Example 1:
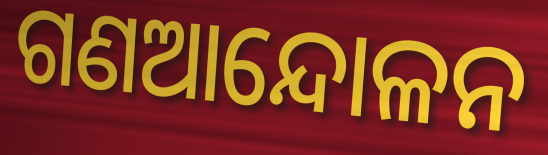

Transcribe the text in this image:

ଗଣଆନ୍ଦୋଳନ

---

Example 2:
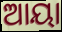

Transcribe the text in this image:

ଆୟା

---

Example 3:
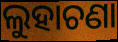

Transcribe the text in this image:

ଲୁହାଚଣା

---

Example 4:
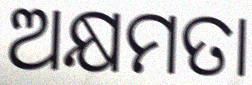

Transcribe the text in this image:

ଅକ୍ଷମତା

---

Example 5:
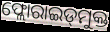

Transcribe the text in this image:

ଫ୍ଲୋରାଇଡ୍‌ମୁକ୍ତ